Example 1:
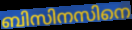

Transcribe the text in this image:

ബിസിനസിനെ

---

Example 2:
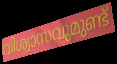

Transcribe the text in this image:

വിശ്വാസവുമുണ്ട്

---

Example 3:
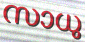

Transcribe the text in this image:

സാധു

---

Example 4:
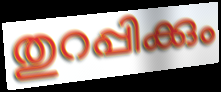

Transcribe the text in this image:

തുറപ്പിക്കും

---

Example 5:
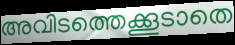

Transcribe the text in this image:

അവിടത്തെക്കൂടാതെ